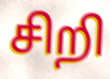
சிறி